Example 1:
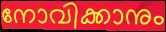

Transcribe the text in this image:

നോവിക്കാനും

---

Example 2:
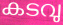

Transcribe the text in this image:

കടവു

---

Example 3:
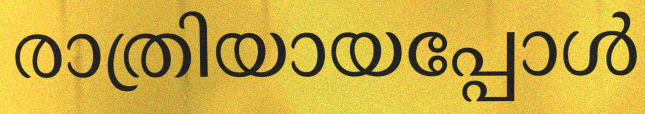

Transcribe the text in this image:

രാത്രിയായപ്പോൾ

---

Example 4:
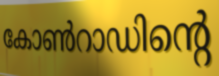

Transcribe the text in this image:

കോൺറാഡിന്റെ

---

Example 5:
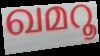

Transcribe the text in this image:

ഖമറൂ